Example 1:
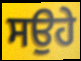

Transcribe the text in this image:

ਸਉਹੇ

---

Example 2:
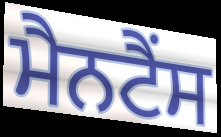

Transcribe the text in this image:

ਮੈਨਟੈਂਸ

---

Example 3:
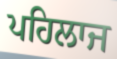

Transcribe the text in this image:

ਪਹਿਲਾਜ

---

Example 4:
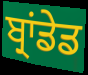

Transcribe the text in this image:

ਬ੍ਰਾਂਡੇਡ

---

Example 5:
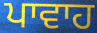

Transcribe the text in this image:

ਪਾਵਾਹ